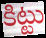
కిట్టు